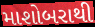
માશોબરાથી